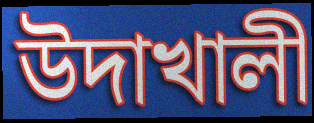
উদাখালী